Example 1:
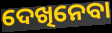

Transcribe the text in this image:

ଦେଖିନେବା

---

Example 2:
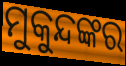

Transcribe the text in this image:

ମୁକୁନ୍ଦଙ୍କର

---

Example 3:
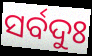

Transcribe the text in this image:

ସର୍ବଦୁଃ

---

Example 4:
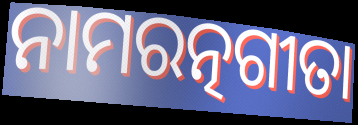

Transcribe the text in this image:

ନାମରତ୍ନଗୀତା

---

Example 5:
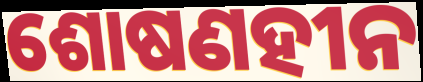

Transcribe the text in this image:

ଶୋଷଣହୀନ